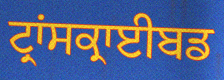
ਟ੍ਰਾਂਸਕ੍ਰਾਈਬਡ